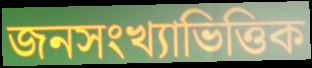
জনসংখ্যাভিত্তিক